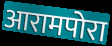
आरामपोरा